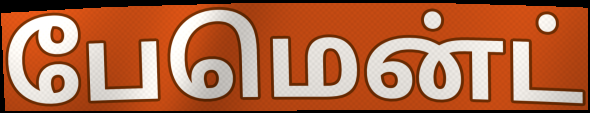
பேமென்ட்